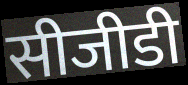
सीजीडी